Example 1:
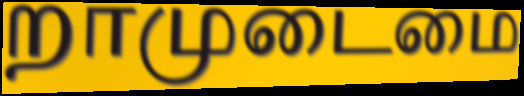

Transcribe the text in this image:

றாமுடைமை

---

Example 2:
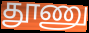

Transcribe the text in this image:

தூணு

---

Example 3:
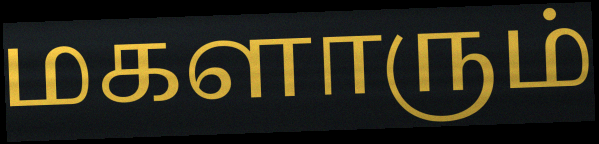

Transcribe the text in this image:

மகளாரும்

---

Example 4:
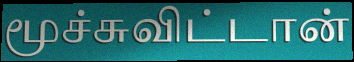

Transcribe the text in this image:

மூச்சுவிட்டான்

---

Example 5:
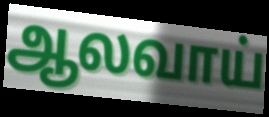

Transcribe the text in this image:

ஆலவாய்